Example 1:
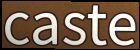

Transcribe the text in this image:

caste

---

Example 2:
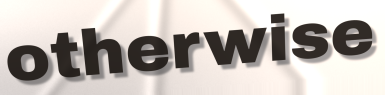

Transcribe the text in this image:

otherwise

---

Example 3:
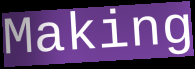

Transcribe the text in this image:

Making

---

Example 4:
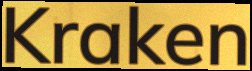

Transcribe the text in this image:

Kraken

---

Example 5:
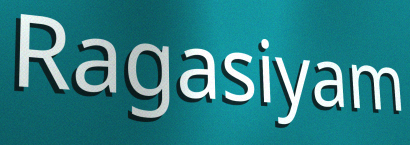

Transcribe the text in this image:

Ragasiyam